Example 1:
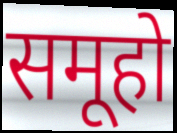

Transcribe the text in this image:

समूहो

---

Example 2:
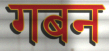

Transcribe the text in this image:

गबन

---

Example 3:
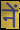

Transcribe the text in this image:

नें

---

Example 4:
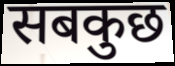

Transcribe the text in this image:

सबकुछ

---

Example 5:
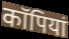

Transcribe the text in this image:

कॉपियां